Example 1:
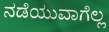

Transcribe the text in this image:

ನಡೆಯುವಾಗೆಲ್ಲ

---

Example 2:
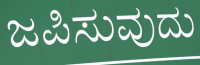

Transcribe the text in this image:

ಜಪಿಸುವುದು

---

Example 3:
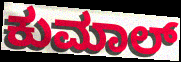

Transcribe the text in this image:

ಕುಮಾಲ್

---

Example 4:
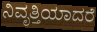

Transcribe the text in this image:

ನಿವೃತ್ತಿಯಾದರೆ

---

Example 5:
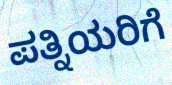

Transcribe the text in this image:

ಪತ್ನಿಯರಿಗೆ